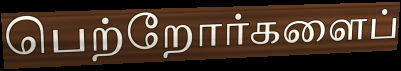
பெற்றோர்களைப்